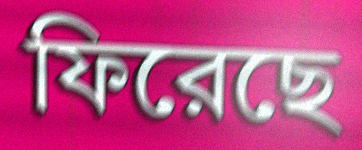
ফিরেছে